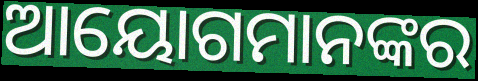
ଆୟୋଗମାନଙ୍କର